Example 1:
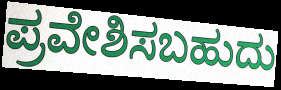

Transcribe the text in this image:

ಪ್ರವೇಶಿಸಬಹುದು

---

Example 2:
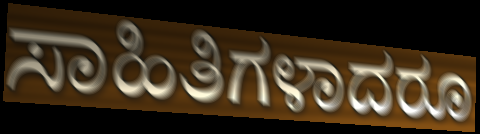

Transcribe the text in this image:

ಸಾಹಿತಿಗಳಾದರೂ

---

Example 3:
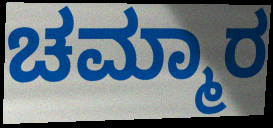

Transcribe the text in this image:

ಚಮ್ಮಾರ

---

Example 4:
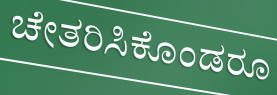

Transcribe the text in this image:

ಚೇತರಿಸಿಕೊಂಡರೂ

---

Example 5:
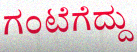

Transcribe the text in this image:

ಗಂಟೆಗೆದ್ದು